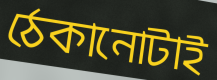
ঠেকানোটাই